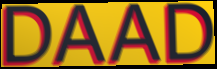
DAAD